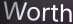
Worth